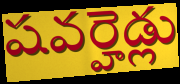
షవర్హెడ్లు